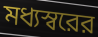
মধ্যস্বরের